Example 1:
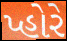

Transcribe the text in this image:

પ્હોરે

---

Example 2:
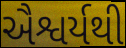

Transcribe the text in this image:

ઐશ્વર્યથી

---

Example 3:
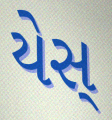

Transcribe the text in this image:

યેસ્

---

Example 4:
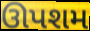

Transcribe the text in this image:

ઊપશમ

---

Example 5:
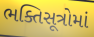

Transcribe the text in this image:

ભક્તિસૂત્રોમાં